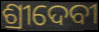
ଶ୍ରୀଦେବୀ